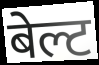
बेल्‍ट